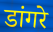
डांगरे